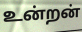
உன்றன்